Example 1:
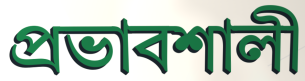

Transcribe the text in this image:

প্রভাবশালী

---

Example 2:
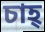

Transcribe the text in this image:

চাহ্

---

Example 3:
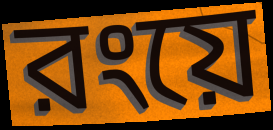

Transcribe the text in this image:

রংয়ে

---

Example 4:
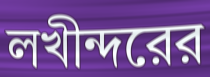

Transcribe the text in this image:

লখীন্দরের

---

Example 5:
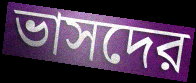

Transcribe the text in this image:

ভাসদের